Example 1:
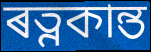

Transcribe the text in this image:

ৰত্নকান্ত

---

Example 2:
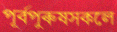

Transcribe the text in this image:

পূৰ্বপুৰুষসকলে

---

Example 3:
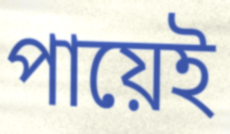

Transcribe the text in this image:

পায়েই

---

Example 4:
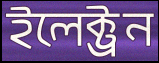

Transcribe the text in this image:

ইলেক্ট্ৰন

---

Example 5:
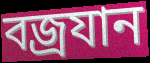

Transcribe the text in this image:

বজ্ৰযান